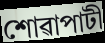
শোৱাপাটী